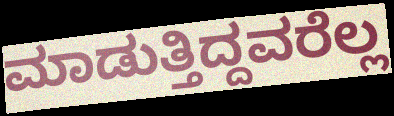
ಮಾಡುತ್ತಿದ್ದವರೆಲ್ಲ